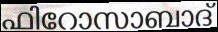
ഫിറോസാബാദ്